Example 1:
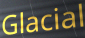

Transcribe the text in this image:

Glacial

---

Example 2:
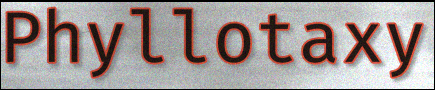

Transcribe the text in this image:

Phyllotaxy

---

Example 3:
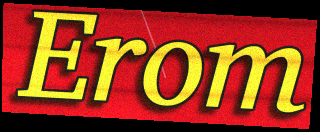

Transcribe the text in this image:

Erom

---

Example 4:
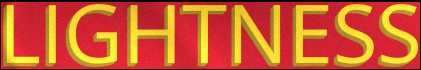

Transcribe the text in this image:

LIGHTNESS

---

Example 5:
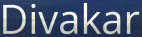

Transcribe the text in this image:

Divakar